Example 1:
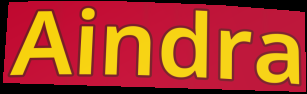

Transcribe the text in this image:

Aindra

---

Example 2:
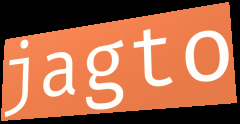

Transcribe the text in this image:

jagto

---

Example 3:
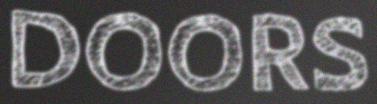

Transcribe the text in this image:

DOORS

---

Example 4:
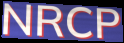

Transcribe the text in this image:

NRCP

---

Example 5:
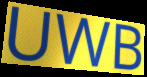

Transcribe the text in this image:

UWB